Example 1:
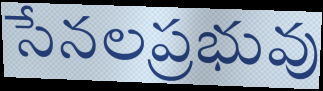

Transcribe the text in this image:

సేనలప్రభువు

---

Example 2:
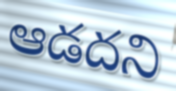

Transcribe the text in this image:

ఆడదని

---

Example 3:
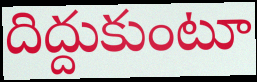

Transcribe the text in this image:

దిద్దుకుంటూ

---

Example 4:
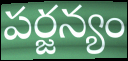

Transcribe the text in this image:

పర్జన్యం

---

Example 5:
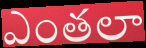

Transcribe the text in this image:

ఎంతలా